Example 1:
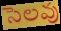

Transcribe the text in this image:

సెలవు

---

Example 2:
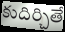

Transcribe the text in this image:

కుదిర్చితే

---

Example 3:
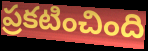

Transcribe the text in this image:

ప్రకటించింది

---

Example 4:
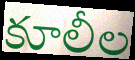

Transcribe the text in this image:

కూలీల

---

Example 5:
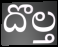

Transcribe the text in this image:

దొల్త